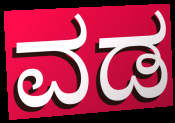
ವಡ